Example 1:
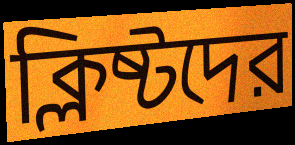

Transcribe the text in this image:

ক্লিষ্টদের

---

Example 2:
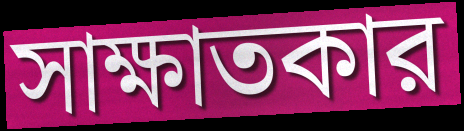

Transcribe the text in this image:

সাক্ষাতকার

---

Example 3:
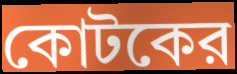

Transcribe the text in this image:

কোটকের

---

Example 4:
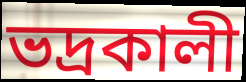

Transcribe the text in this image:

ভদ্রকালী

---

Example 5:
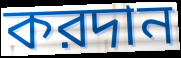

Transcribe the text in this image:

করদান